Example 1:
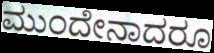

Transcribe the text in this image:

ಮುಂದೇನಾದರೂ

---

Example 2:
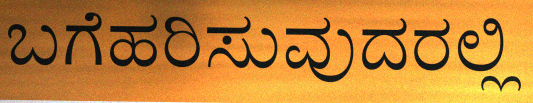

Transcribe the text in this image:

ಬಗೆಹರಿಸುವುದರಲ್ಲಿ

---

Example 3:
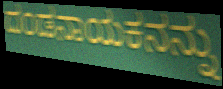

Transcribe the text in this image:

ದಂಡನಾಯಕನನ್ನು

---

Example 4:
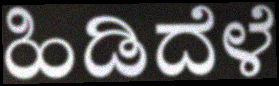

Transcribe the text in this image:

ಹಿಡಿದೆಳೆ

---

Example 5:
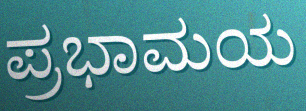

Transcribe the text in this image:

ಪ್ರಭಾಮಯ